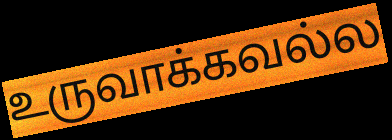
உருவாக்கவல்ல